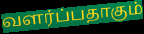
வளர்ப்பதாகும்